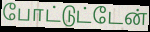
போட்டுட்டேன்